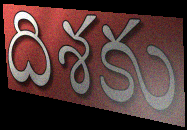
దిశకు